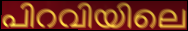
പിറവിയിലെ